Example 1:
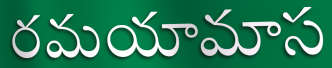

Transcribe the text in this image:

రమయామాస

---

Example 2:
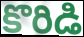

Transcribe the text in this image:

కొరిడి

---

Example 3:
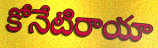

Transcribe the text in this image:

కోనేటిరాయా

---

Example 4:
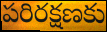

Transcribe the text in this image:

పరిరక్షణకు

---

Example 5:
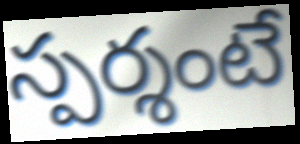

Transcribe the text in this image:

స్పర్శంటే